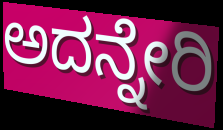
ಅದನ್ನೇರಿ